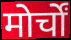
मोर्चों